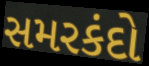
સમરકંદો